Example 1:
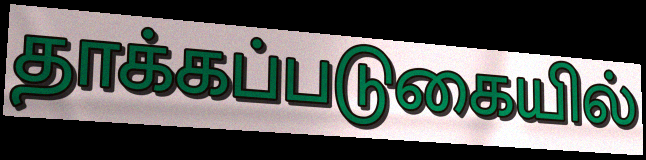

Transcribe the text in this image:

தாக்கப்படுகையில்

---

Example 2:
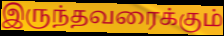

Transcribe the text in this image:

இருந்தவரைக்கும்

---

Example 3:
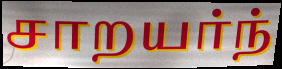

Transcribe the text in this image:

சாறயர்ந்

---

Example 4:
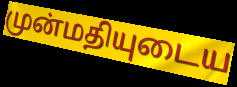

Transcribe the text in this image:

முன்மதியுடைய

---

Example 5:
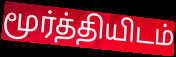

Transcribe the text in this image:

மூர்த்தியிடம்